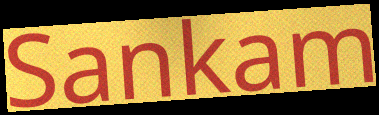
Sankam